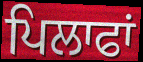
ਪਿਲਾਫਾਂ